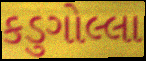
કડુગોલ્લા